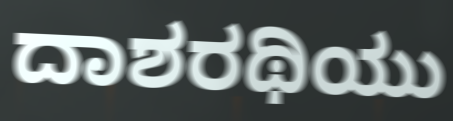
ದಾಶರಥಿಯು